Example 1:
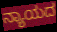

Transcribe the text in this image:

ನ್ಯಾಯದ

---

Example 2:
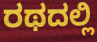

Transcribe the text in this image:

ರಥದಲ್ಲಿ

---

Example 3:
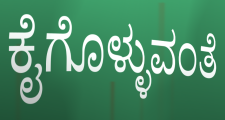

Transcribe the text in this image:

ಕೈಗೊಳ್ಳುವಂತೆ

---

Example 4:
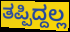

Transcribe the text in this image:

ತಪ್ಪಿದ್ದಲ್ಲ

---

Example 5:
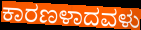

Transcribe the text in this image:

ಕಾರಣಳಾದವಳು